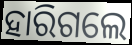
ହାରିଗଲେ